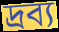
দ্রব্য